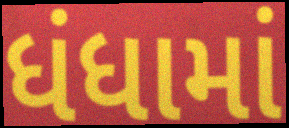
ધંધામાં